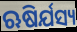
ଋଷିର୍ଯସ୍ୟ